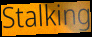
Stalking